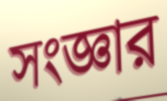
সংজ্ঞার